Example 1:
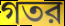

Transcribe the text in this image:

গতর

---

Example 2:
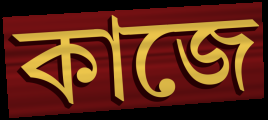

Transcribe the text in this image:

কাজে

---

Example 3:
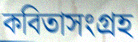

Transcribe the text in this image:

কবিতাসংগ্রহ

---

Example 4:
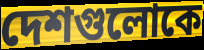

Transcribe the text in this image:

দেশগুলোকে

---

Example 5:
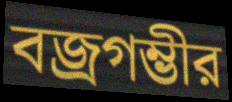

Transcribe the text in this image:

বজ্রগম্ভীর